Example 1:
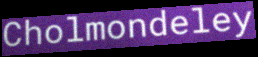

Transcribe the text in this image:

Cholmondeley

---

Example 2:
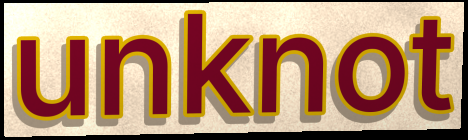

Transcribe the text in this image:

unknot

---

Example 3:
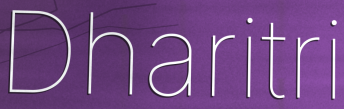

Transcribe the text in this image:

Dharitri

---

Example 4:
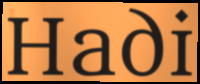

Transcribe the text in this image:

Hadi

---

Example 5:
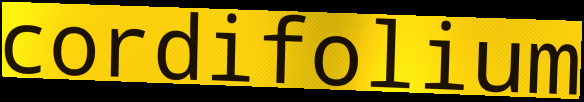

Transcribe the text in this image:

cordifolium